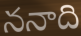
ననాది